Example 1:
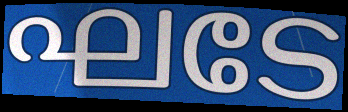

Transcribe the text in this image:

ഘടേ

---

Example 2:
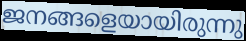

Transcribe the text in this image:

ജനങ്ങളെയായിരുന്നു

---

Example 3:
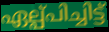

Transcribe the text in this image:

ഏല്പ്പിച്ചിട്ട്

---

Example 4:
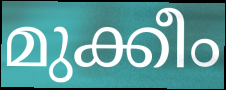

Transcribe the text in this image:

മുക്കീം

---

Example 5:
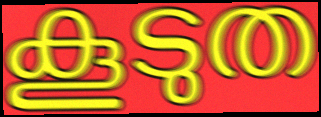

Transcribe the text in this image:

കൂടുത